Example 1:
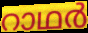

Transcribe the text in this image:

റാഥർ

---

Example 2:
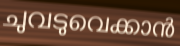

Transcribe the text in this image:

ചുവടുവെക്കാൻ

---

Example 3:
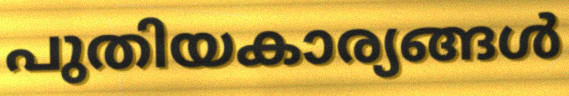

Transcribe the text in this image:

പുതിയകാര്യങ്ങൾ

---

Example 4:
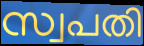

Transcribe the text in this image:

സ്വപതി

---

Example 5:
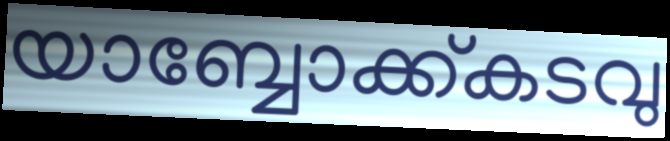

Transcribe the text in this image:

യാബ്ബോക്ക്കടവു